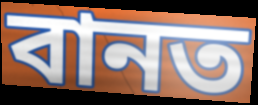
বানত